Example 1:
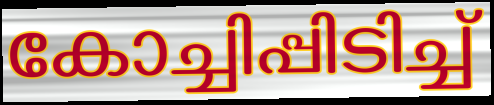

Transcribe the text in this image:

കോച്ചിപ്പിടിച്ച്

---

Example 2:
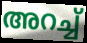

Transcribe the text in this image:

അറച്ച്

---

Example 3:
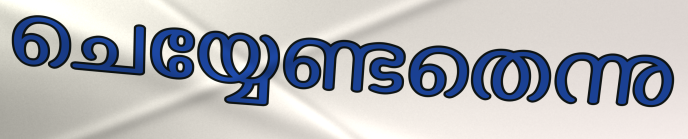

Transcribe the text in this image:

ചെയ്യേണ്ടതെന്നു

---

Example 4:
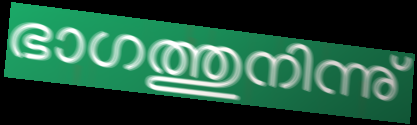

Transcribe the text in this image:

ഭാഗത്തുനിന്നു്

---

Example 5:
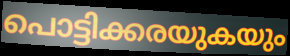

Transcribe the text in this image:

പൊട്ടിക്കരയുകയും